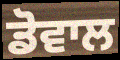
ਡੋਵਾਲ